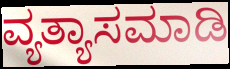
ವ್ಯತ್ಯಾಸಮಾಡಿ